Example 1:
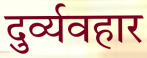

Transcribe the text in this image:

दुर्व्यवहार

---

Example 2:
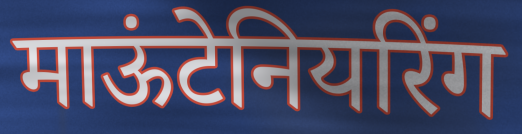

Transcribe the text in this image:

माऊंटेनियरिंग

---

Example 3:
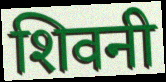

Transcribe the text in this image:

शिवनी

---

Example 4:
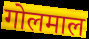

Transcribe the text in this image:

गोलमाल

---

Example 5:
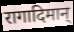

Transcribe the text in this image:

रागादिमान्